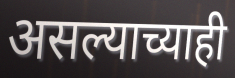
असल्याच्याही